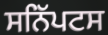
ਸਨਿੱਪਟਸ